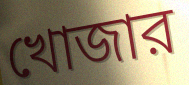
খোজার